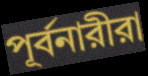
পূর্বনারীরা